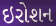
ઇરોશન